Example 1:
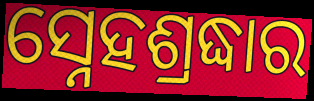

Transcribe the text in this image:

ସ୍ନେହଶ୍ରଦ୍ଧାର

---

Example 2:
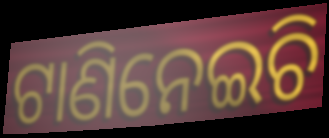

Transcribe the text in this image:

ଟାଣିନେଇଚି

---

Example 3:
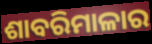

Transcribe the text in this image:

ଶାବରିମାଳାର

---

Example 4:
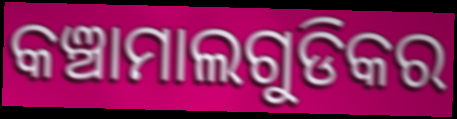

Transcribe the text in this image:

କଞ୍ଚାମାଲଗୁଡିକର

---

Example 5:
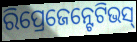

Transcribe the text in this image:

ରିପ୍ରେଜେନ୍ଟେଟିଭସ୍